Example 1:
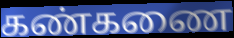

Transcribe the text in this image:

கண்கணை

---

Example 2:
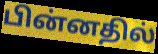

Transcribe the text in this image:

பின்னதில்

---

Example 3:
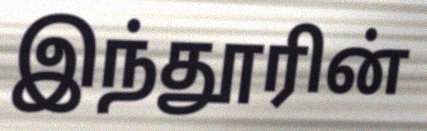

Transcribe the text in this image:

இந்தூரின்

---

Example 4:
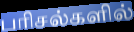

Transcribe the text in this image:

பரிசல்களில்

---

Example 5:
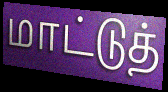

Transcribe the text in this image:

மாட்டுத்